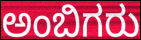
ಅಂಬಿಗರು